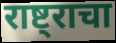
राष्ट्राचा